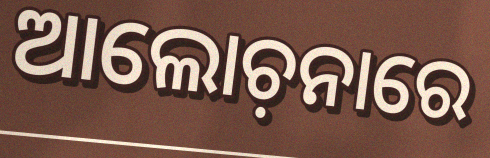
ଆଲୋଚ଼ନାରେ